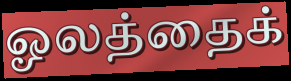
ஓலத்தைக்